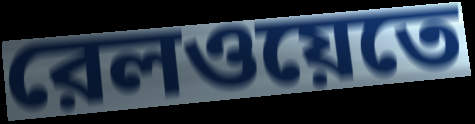
রেলওয়েতে